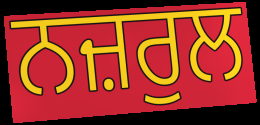
ਨਜ਼ਰੁਲ